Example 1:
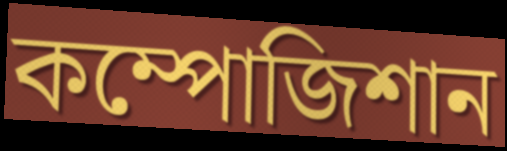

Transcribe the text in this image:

কম্পোজিশান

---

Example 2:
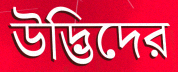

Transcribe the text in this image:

উদ্ভিদের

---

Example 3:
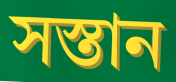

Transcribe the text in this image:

সস্তান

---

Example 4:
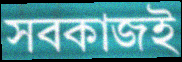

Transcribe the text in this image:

সবকাজই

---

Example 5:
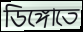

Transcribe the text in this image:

ডিঙ্গোতে